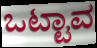
ಒಟ್ಟಾವ